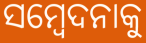
ସମ୍ବେଦନାକୁ